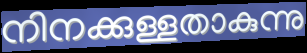
നിനക്കുള്ളതാകുന്നു